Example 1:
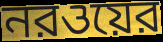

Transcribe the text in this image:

নরওয়ের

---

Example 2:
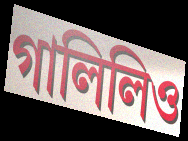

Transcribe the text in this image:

গালিলিও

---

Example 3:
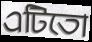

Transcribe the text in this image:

এটিতো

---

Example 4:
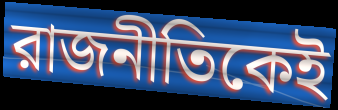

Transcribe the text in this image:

রাজনীতিকেই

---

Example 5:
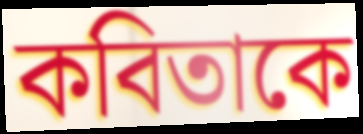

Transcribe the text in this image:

কবিতাকে